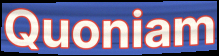
Quoniam